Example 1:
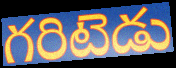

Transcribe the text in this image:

గరిటెడు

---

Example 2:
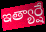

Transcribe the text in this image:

ఇత్యార్షే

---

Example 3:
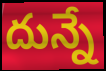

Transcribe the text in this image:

దున్నే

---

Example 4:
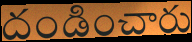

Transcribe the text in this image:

దండించారు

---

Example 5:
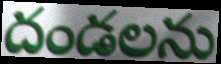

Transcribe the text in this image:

దండలను